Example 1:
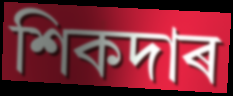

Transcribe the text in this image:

শিকদাৰ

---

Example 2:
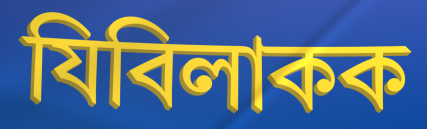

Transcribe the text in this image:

যিবিলাকক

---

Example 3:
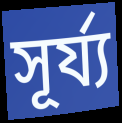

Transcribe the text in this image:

সূৰ্য্য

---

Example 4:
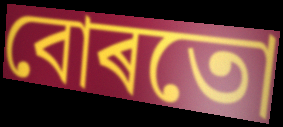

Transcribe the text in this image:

বোৰতো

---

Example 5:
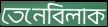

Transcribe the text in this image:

তেনেবিলাক